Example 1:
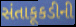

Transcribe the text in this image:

સંતાકૂકડીની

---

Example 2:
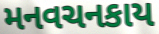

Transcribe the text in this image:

મનવચનકાય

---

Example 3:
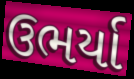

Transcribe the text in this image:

ઉભર્યા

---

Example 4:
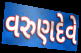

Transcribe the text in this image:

વરુણદેવે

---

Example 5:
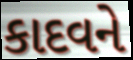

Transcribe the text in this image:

કાદવને